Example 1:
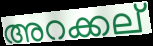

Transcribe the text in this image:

അറക്കല്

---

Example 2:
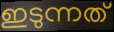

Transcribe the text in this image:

ഇടുന്നത്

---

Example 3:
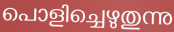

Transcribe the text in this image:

പൊളിച്ചെഴുതുന്നു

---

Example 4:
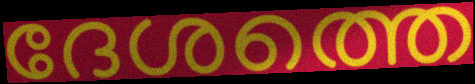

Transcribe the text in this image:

ദേശത്തെ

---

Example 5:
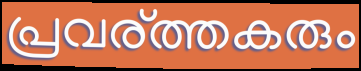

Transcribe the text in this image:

പ്രവര്ത്തകരും